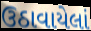
ઉઠાવાયેલાં